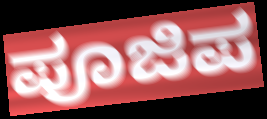
ಪೂಜಿಪ